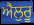
ਐਲੁਰੂ